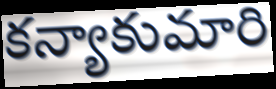
కన్యాకుమారి